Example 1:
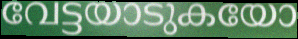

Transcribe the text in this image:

വേട്ടയാടുകയോ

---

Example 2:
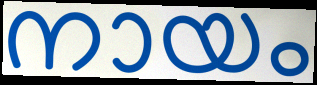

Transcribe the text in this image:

നായം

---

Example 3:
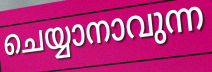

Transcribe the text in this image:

ചെയ്യാനാവുന്ന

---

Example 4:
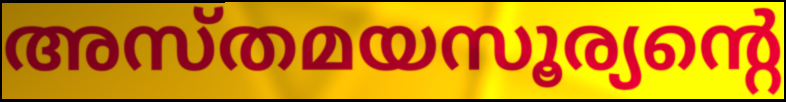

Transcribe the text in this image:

അസ്തമയസൂര്യന്റെ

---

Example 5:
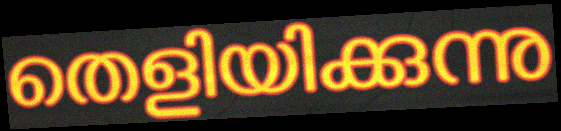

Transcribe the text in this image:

തെളിയിക്കുന്നു